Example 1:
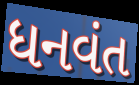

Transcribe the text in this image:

ધનવંત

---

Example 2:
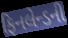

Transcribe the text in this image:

ફિનલેન્ડની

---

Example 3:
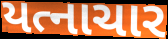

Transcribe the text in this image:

યત્નાચાર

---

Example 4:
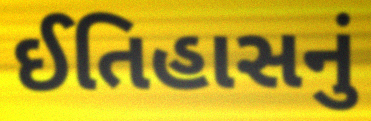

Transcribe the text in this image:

ઈતિહાસનું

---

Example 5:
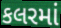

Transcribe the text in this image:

કલરમાં